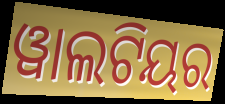
ୱାଲଟିୟର